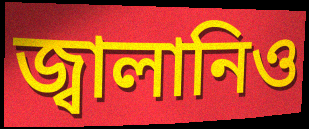
জ্বালানিও